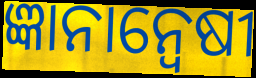
ଜ୍ଞାନାନ୍ୱେଷୀ